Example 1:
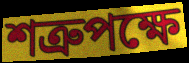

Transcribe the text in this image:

শত্রুপক্ষে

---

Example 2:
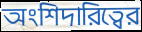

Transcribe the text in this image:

অংশিদারিত্বের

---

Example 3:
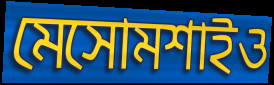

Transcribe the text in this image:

মেসোমশাইও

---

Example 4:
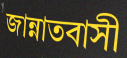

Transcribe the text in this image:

জান্নাতবাসী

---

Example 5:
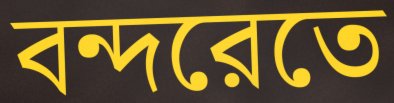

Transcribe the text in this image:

বন্দরেতে